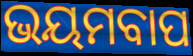
ଭୟମବାପ